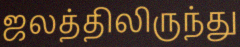
ஜலத்திலிருந்து